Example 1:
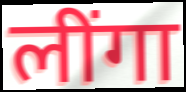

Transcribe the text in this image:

लींगा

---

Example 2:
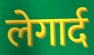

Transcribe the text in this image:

लेगार्द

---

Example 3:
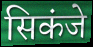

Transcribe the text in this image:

सिकंजे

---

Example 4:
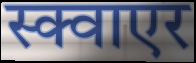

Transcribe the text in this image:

स्क्वाएर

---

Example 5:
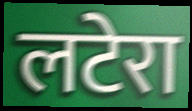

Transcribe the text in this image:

लटेरा